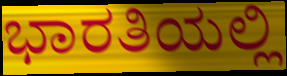
ಭಾರತಿಯಲ್ಲಿ